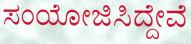
ಸಂಯೋಜಿಸಿದ್ದೇವೆ